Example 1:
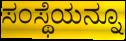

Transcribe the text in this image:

ಸಂಸ್ಥೆಯನ್ನೂ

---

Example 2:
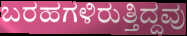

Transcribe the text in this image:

ಬರಹಗಳಿರುತ್ತಿದ್ದವು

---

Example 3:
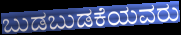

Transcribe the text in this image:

ಬುಡಬುಡಕೆಯವರು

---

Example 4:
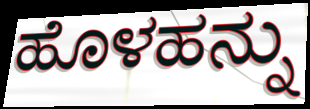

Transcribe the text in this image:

ಹೊಳಹನ್ನು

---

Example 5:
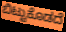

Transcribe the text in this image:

ಬಿಟ್ಟುಕೊಡದೆ